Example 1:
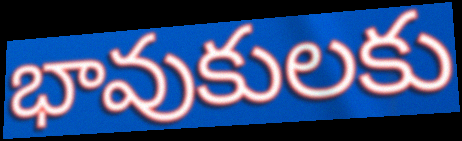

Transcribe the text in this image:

భావుకులకు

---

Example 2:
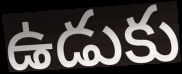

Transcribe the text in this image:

ఉడుకు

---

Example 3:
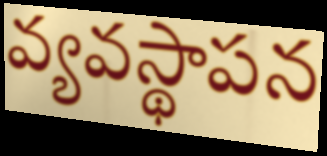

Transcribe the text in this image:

వ్యవస్థాపన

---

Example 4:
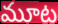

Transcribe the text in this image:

మూట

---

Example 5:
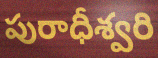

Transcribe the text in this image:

పురాధీశ్వరి